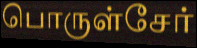
பொருள்சேர்